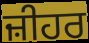
ਜ਼ੀਹਰ